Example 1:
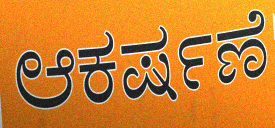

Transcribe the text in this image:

ಆಕರ್ಷಣೆ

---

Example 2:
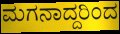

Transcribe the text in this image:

ಮಗನಾದ್ದರಿಂದ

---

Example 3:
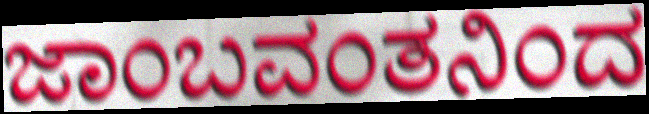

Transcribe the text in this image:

ಜಾಂಬವಂತನಿಂದ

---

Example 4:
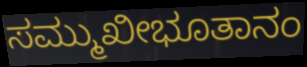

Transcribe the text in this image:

ಸಮ್ಮುಖೀಭೂತಾನಂ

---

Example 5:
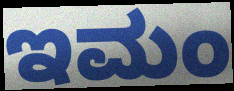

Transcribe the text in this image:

ಇಮಂ